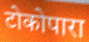
टोकोपारा